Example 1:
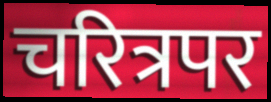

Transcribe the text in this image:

चरित्रपर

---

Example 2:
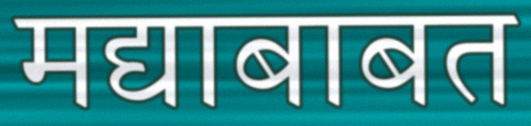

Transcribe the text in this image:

मद्याबाबत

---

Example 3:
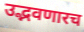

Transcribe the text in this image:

उद्भवणारच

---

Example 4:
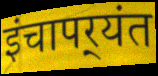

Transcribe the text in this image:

इंचापर्यंत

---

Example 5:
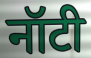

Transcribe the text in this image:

नॉटी